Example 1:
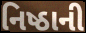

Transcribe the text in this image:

નિષ્ઠાની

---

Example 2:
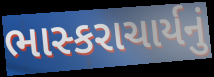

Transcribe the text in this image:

ભાસ્કરાચાર્યનું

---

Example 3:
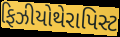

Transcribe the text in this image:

ફિઝીયોથેરાપિસ્ટ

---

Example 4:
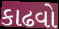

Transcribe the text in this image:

કાઢવો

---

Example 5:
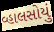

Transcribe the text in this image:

વ્હાલસોયું